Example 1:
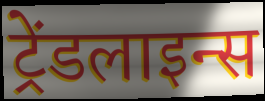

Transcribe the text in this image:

ट्रेंडलाइन्स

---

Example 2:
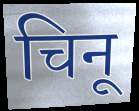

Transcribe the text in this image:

चिनू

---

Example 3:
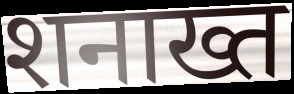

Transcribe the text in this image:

शनाख्त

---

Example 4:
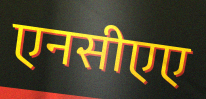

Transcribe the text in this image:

एनसीएए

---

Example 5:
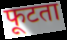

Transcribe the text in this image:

फूटता